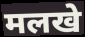
मलखे